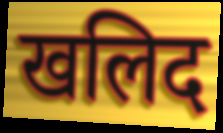
खलिद